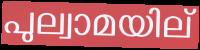
പുല്വാമയില്